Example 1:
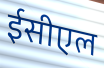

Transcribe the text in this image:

ईसीएल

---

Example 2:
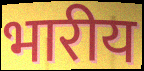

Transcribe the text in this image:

भारीय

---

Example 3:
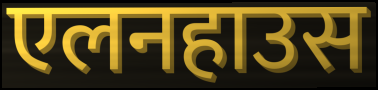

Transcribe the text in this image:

एलनहाउस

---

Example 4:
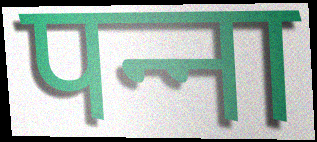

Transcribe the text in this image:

पन्‍ना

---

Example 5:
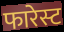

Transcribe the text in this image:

फारेस्‍ट